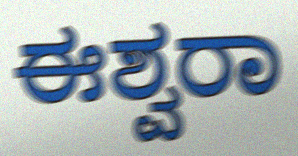
ಈಶ್ವರಾ